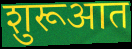
शुरूआत